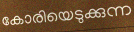
കോരിയെടുക്കുന്ന